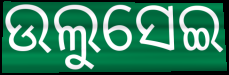
ଉଲୁସେଇ